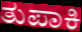
ತುಪಾಕಿ